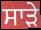
ਸਾੜੇ